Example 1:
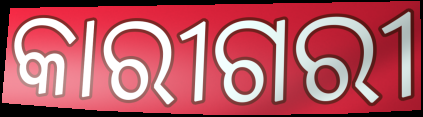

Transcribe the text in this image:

କାରୀଗରୀ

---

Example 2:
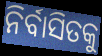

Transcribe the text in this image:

ନିର୍ବାସିତକୁ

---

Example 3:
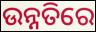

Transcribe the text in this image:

ଉନ୍ନତିରେ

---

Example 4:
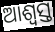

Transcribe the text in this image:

ଆଶ୍ୱସ୍ତ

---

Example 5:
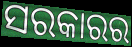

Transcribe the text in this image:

ସରକାରର